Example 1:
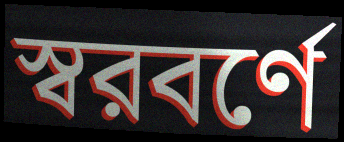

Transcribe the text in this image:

স্বরবর্ণে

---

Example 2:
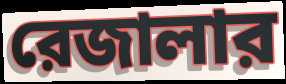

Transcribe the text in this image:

রেজালার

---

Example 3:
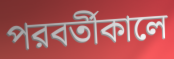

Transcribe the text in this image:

পরবর্তীকালে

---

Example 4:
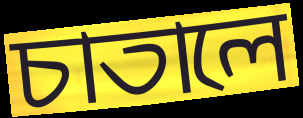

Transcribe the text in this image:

চাতালে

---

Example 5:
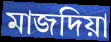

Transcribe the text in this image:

মাজদিয়া